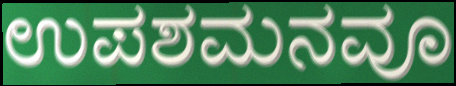
ಉಪಶಮನವೂ